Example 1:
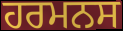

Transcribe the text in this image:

ਹਰਮਨਸ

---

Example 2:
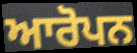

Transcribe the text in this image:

ਆਰੋਪਨ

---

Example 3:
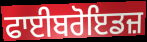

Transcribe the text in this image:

ਫਾਈਬਰੋਇਡਜ਼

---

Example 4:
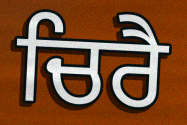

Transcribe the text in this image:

ਚਿਰੈ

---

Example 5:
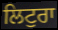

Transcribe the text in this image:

ਲਿਟੁਰਾ